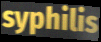
syphilis